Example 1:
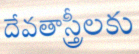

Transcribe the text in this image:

దేవతాస్త్రీలకు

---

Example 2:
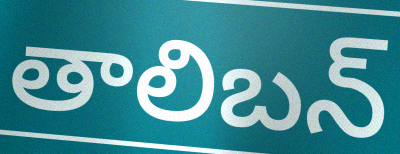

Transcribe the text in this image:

తాలిబన్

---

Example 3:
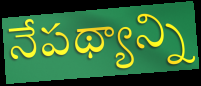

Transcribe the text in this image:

నేపథ్యాన్ని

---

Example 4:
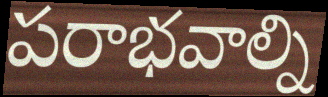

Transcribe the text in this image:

పరాభవాల్ని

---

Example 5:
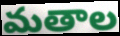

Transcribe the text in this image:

మతాల